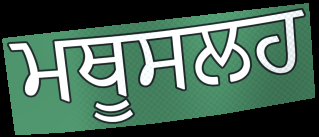
ਮਥੂਸਲਹ